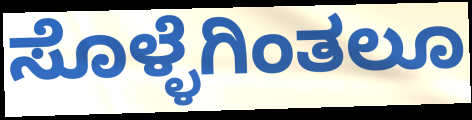
ಸೊಳ್ಳೆಗಿಂತಲೂ